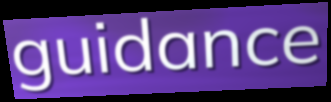
guidance